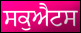
ਸਕੁਐਟਸ